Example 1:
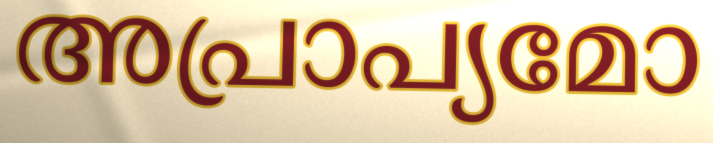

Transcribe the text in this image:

അപ്രാപ്യമോ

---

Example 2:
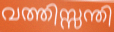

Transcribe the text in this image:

വത്തിസ്സന്തി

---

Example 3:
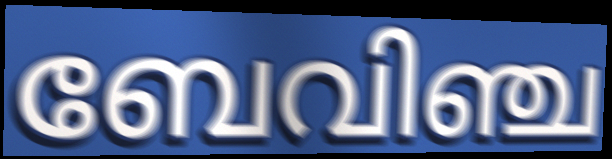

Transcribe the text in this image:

ബേവിഞ്ച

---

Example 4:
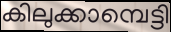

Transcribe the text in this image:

കിലുക്കാമ്പെട്ടി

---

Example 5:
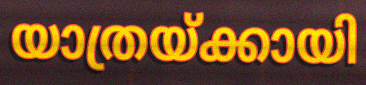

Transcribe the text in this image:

യാത്രയ്ക്കായി